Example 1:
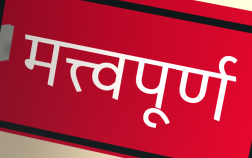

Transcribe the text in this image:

मत्त्वपूर्ण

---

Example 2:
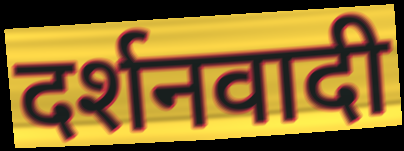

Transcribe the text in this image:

दर्शनवादी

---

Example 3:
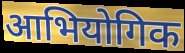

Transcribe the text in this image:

आभियोगिक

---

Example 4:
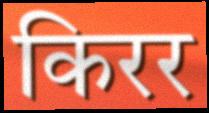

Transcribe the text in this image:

किरर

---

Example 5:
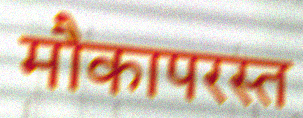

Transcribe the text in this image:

मौकापरस्त